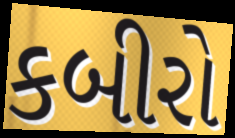
કબીરો